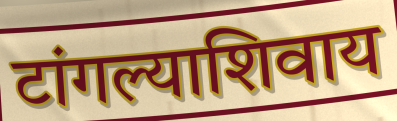
टांगल्याशिवाय